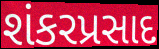
શંકરપ્રસાદ